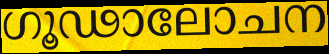
ഗൂഢാലോചന